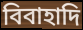
বিবাহাদি